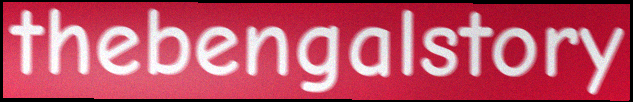
thebengalstory